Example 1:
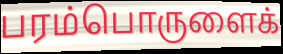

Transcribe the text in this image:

பரம்பொருளைக்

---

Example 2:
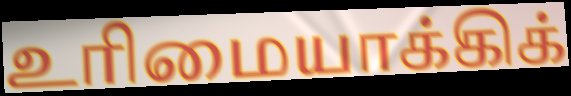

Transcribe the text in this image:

உரிமையாக்கிக்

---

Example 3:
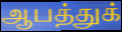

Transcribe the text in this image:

ஆபத்துக்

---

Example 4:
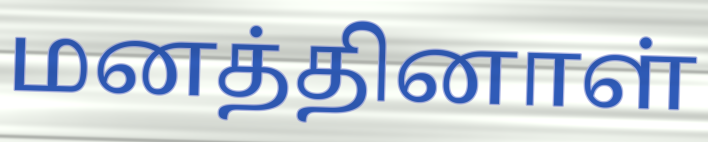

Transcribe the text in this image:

மனத்தினாள்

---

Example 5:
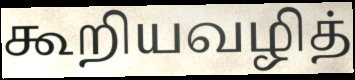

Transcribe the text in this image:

கூறியவழித்